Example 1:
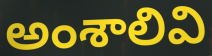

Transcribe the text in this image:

అంశాలివి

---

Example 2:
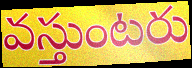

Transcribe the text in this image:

వస్తుంటరు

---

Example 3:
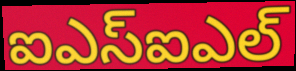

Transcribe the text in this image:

ఐఎస్ఐఎల్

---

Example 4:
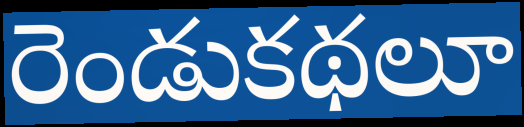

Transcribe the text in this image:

రెండుకథలూ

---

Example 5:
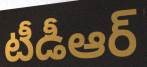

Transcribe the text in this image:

టీడీఆర్